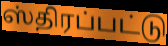
ஸ்திரப்பட்டு